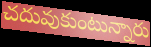
చదువుకుంటున్నారు